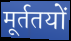
मूर्ततयों